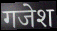
गजेश